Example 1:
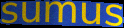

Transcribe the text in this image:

sumus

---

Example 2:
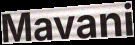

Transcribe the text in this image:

Mavani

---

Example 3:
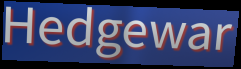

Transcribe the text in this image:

Hedgewar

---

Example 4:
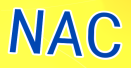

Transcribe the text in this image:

NAC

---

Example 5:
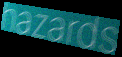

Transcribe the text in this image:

hazards